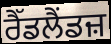
ਰੈੱਡਲੈਂਡਜ਼